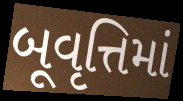
બૂવૃત્તિમાં